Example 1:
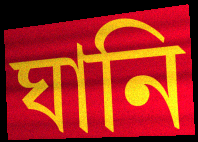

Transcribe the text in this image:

ঘানি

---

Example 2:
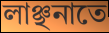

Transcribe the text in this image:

লাঞ্ছনাতে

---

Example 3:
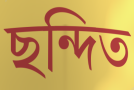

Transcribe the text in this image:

ছন্দিত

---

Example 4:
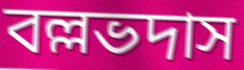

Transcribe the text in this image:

বল্লভদাস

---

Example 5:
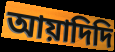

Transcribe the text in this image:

আয়াদিদি